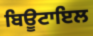
ਬਿਊਟਾਇਲ